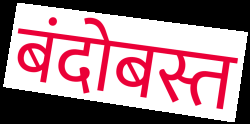
बंदोबस्त